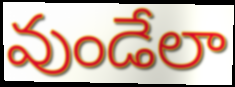
వుండేలా